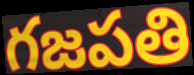
గజపతి